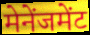
मेनेंजमेंट